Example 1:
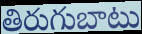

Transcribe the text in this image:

తిరుగుబాటు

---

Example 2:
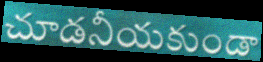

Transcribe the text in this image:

చూడనీయకుండా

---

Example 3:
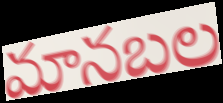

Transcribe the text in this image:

మానబల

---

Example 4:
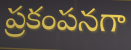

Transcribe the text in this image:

ప్రకంపనగా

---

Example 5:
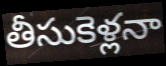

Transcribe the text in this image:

తీసుకెళ్లనా